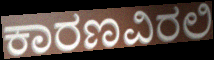
ಕಾರಣವಿರಲಿ